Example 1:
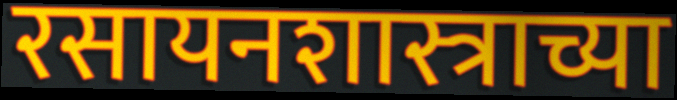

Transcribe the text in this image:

रसायनशास्त्राच्या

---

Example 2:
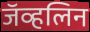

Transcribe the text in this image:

जॅव्हलिन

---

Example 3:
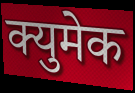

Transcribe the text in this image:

क्युमेक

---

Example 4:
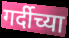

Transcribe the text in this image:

गर्दीच्या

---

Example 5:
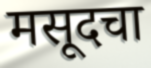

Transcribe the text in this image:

मसूदचा